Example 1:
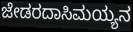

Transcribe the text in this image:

ಜೇಡರದಾಸಿಮಯ್ಯನ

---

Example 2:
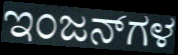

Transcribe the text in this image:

ಇಂಜನ್‌ಗಳ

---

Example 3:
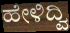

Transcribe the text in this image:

ಹೇಳಿದ್ವಿ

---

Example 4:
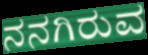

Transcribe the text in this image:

ನನಗಿರುವ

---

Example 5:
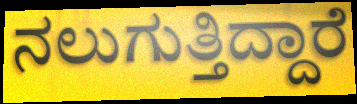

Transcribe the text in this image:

ನಲುಗುತ್ತಿದ್ದಾರೆ